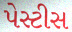
પેસ્ટીસ